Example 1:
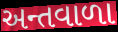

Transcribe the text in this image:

અન્તવાળા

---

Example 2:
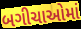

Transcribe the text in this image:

બગીચાઓમાં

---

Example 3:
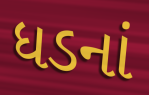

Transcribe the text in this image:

ધડનાં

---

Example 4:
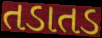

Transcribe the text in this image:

તડાતડ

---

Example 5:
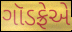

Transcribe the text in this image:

ગૉડફ્રેએ